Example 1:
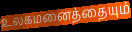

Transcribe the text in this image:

உலகமனைத்தையும்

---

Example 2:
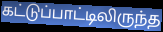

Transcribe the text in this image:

கட்டுப்பாட்டிலிருந்த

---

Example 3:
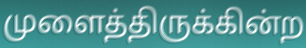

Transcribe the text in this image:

முளைத்திருக்கின்ற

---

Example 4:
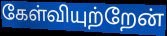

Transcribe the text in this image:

கேள்வியுற்றேன்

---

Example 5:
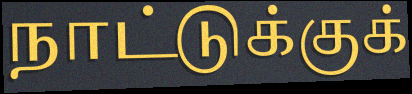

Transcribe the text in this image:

நாட்டுக்குக்